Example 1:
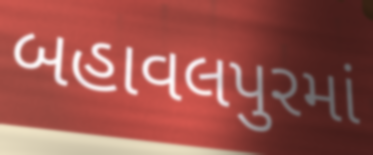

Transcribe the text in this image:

બહાવલપુરમાં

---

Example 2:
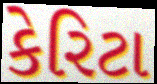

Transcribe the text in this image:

કેરિટા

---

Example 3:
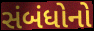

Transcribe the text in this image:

સંબંધોનો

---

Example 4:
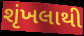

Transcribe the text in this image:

શૃંખલાથી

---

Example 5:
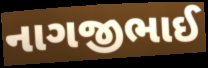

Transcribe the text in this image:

નાગજીભાઈ